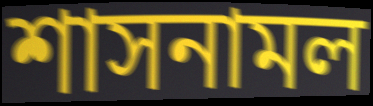
শাসনামল